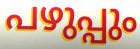
പഴുപ്പും